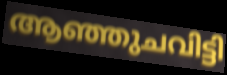
ആഞ്ഞുചവിട്ടി